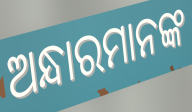
ଅନ୍ଧାରମାନଙ୍କ